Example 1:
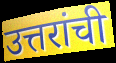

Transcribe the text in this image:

उत्तरांची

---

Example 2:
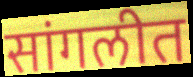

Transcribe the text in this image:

सांगलीत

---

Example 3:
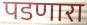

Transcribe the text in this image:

पडणारा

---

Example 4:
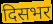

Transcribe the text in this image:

दिसभर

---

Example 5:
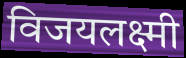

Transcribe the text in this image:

विजयलक्ष्मी